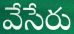
వేసేరు